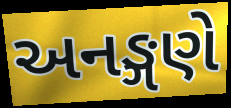
અનઙ્ગણે